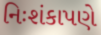
નિઃશંકાપણે